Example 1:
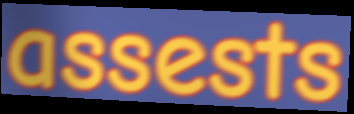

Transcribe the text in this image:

assests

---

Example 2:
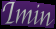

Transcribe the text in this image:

Imin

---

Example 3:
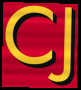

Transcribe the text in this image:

CJ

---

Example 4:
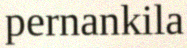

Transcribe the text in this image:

pernankila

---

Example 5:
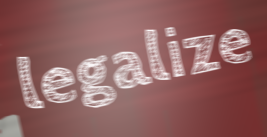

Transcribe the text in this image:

legalize